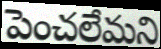
పెంచలేమని